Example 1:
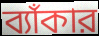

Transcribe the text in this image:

ব্যাঁকার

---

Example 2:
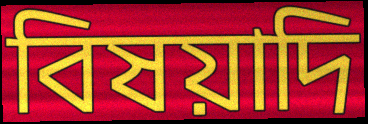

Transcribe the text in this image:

বিষয়াদি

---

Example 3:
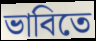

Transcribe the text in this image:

ভাবিতে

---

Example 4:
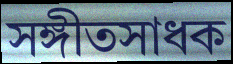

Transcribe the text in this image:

সঙ্গীতসাধক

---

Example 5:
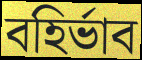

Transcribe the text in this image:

বহির্ভাব